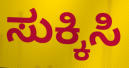
ಸುಕ್ಕಿಸಿ